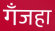
गँजहा